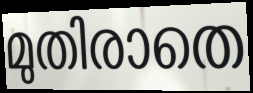
മുതിരാതെ